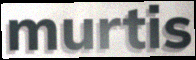
murtis